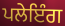
ਪਲੇਇੰਗ